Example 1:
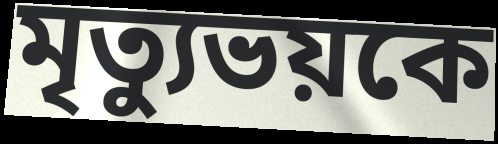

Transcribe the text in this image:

মৃত্যুভয়কে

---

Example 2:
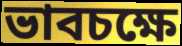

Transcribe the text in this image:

ভাবচক্ষে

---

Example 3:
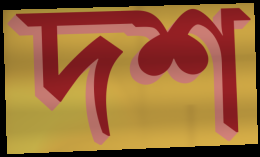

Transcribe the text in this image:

দশ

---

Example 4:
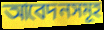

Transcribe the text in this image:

আবেদনসমূহ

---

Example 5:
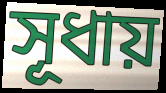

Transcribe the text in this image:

সূধায়